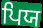
ਪਿਯ